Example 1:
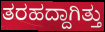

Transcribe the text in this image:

ತರಹದ್ದಾಗಿತ್ತು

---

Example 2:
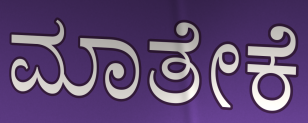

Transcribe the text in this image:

ಮಾತೇಕೆ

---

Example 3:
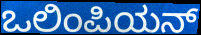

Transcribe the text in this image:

ಒಲಿಂಪಿಯನ್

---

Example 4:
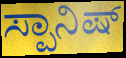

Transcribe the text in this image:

ಸ್ಪಾನಿಷ್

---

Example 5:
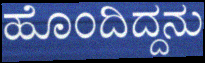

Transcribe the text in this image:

ಹೊಂದಿದ್ದನು